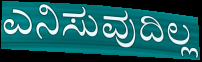
ಎನಿಸುವುದಿಲ್ಲ